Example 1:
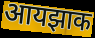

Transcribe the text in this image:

आयझाक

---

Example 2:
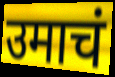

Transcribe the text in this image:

उमाचं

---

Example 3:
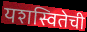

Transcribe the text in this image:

यशस्वितेची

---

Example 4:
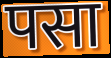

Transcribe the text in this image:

पसा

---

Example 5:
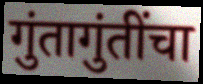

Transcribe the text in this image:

गुंतागुंतींचा